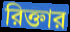
রিক্তার